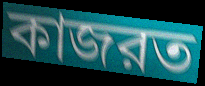
কাজরত